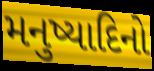
મનુષ્યાદિનો